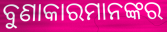
ବୁଣାକାରମାନଙ୍କର